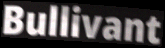
Bullivant